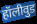
हॉलीवुड